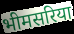
भीमसरिया